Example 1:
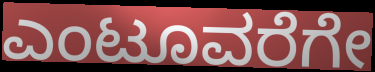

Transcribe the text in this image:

ಎಂಟೂವರೆಗೇ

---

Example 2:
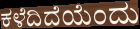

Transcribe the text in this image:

ಕಳೆದಿದೆಯೆಂದು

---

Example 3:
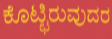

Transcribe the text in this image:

ಕೊಟ್ಟಿರುವುದರ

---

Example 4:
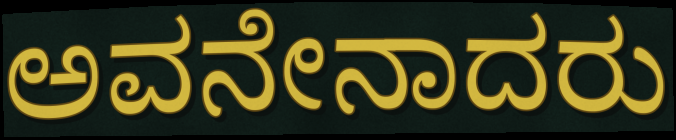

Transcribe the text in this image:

ಅವನೇನಾದರು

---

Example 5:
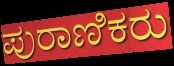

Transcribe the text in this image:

ಪುರಾಣಿಕರು